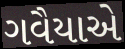
ગવૈયાએ